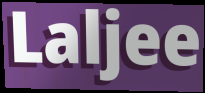
Laljee